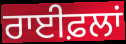
ਰਾਈਫ਼ਲਾਂ